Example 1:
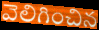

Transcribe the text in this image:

వెలిగించిన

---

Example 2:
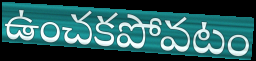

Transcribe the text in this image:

ఉంచకపోవటం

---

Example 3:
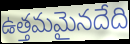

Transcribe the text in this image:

ఉత్తమమైనదేది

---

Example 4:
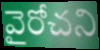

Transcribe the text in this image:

వైరోచని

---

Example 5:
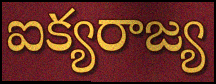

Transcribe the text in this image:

ఐక్యరాజ్య